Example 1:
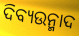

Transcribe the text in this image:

ଦିବ୍ୟଉନ୍ମାଦ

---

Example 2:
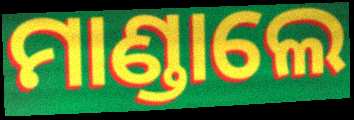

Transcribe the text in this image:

ମାଣ୍ଡାଲେ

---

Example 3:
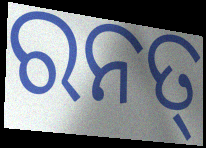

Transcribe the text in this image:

ରନତ୍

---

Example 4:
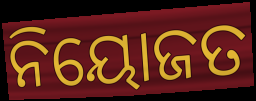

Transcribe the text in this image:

ନିୟୋଜତ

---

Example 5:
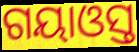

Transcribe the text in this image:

ଗୟାଓସ୍ତ